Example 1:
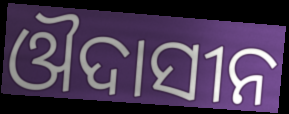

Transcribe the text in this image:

ଔଦାସୀନ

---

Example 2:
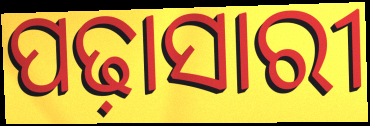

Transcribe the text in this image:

ପଢ଼ାସାରୀ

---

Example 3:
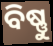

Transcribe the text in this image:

ବିଷ୍ଣୁ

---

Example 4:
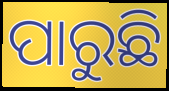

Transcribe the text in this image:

ପାରୁଛି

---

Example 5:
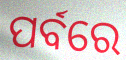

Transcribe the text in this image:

ପର୍ବରେ